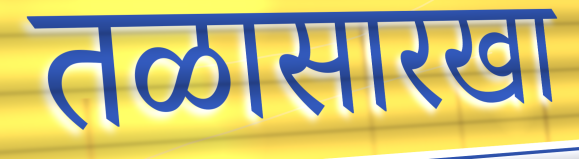
तळासारखा